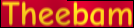
Theebam